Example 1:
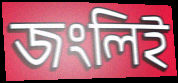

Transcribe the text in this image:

জংলিই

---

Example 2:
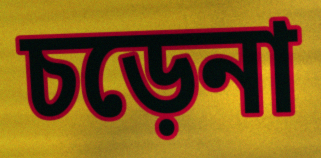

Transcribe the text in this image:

চড়েনা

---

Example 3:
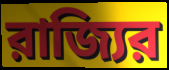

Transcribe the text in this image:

রাজ্যির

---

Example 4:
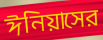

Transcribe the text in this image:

ঈনিয়াসের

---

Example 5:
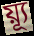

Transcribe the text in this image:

য়্যূ